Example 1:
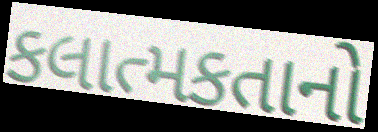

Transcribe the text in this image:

કલાત્મકતાનો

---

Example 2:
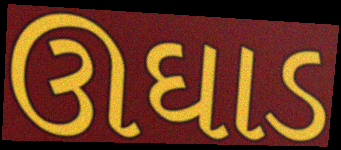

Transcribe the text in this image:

ઊઘાડ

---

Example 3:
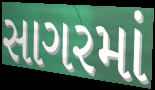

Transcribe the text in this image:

સાગરમાં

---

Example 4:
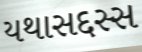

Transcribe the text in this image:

યથાસદ્દસ્સ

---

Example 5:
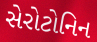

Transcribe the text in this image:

સેરોટોનિન